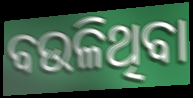
ବଉଳିଥିବା